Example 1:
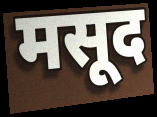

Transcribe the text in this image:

मसूद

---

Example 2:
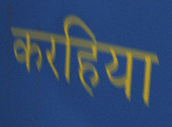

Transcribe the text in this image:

करहिया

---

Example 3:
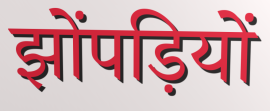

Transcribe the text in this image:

झोंपड़ियों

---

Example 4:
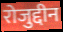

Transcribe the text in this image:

रोजुद्दीन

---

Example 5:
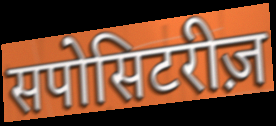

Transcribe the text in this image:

सपोसिटरीज़